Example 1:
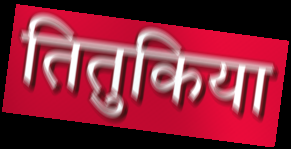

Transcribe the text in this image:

तितुकिया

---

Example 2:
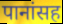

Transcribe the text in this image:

पानांसह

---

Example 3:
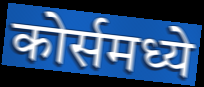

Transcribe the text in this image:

कोर्समध्ये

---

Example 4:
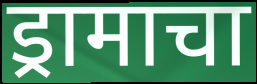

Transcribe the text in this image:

ड्रामाचा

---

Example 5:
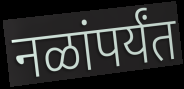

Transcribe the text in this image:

नळांपर्यंत